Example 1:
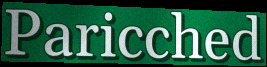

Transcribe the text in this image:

Paricched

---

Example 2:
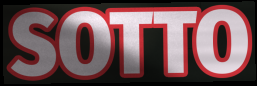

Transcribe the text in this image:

SOTTO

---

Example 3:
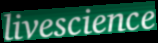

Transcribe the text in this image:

livescience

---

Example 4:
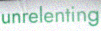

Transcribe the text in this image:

unrelenting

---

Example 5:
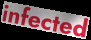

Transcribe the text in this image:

infected